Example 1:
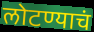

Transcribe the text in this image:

लोटण्याचं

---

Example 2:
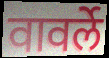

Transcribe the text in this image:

वावर्ले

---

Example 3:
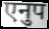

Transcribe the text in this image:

एनुप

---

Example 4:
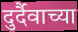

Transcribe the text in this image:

दुर्दैवाच्या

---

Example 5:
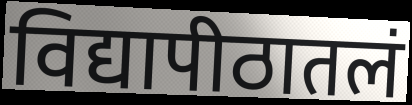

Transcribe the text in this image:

विद्यापीठातलं